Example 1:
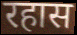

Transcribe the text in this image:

रहास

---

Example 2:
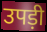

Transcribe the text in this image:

उपड़ी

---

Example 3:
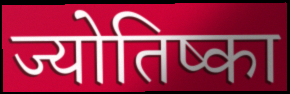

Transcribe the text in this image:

ज्योतिष्का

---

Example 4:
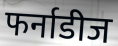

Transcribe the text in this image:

फर्नाडीज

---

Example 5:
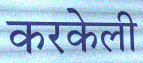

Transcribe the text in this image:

करकेली